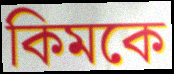
কিমকে